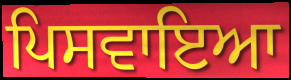
ਪਿਸਵਾਇਆ